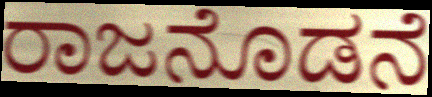
ರಾಜನೊಡನೆ